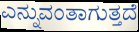
ಎನ್ನುವಂತಾಗುತ್ತದೆ